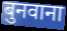
बुनवाना